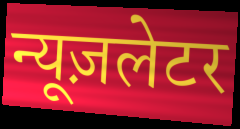
न्यूज़लेटर